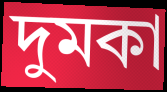
দুমকা